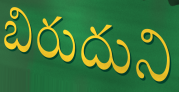
బిరుదుని